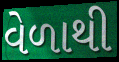
વેળાથી